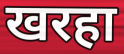
खरहा